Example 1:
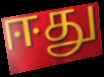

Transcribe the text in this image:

ஈது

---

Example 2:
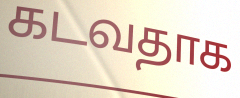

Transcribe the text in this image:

கடவதாக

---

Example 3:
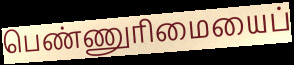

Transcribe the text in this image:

பெண்ணுரிமையைப்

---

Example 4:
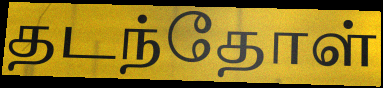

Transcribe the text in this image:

தடந்தோள்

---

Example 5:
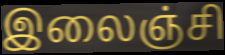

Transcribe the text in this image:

இலைஞ்சி